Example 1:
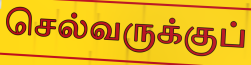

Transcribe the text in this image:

செல்வருக்குப்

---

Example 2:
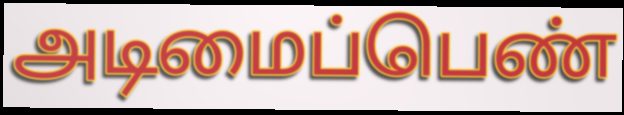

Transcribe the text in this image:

அடிமைப்பெண்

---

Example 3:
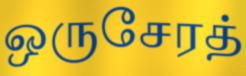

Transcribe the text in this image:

ஒருசேரத்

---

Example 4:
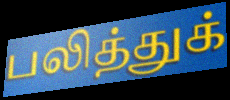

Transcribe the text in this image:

பலித்துக்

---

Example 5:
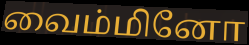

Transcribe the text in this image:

வைம்மினோ